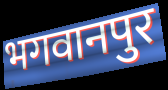
भगवानपुर